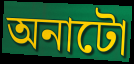
অনাটো